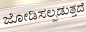
ಜೋಡಿಸಲ್ಪಡುತ್ತದೆ